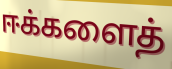
ஈக்களைத்